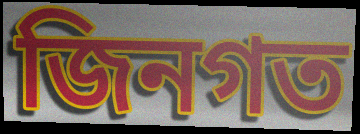
জিনগত